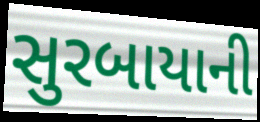
સુરબાયાની